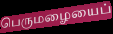
பெருமழையைப்